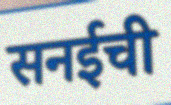
सनईची